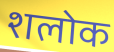
शलोक